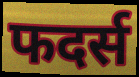
फदर्स